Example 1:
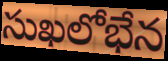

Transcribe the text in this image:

సుఖలోభేన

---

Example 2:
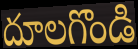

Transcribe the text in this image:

దూలగొండి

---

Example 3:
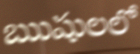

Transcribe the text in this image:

ఋషులలో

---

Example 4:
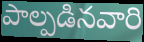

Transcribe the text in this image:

పాల్పడినవారి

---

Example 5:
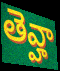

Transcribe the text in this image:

తెవ్హా